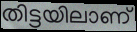
തിട്ടയിലാണ്